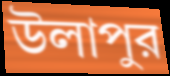
উলাপুর